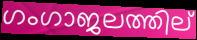
ഗംഗാജലത്തില്